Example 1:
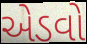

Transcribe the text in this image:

એડવો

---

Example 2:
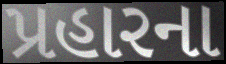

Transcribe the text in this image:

પ્રહારના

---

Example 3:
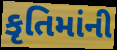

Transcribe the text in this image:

કૃતિમાંની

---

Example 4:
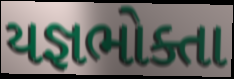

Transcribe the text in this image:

યજ્ઞભોક્તા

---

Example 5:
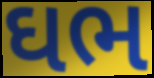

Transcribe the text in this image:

ઘભ